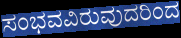
ಸಂಭವವಿರುವುದರಿಂದ